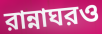
রান্নাঘরও